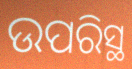
ଉପରିସ୍ଥ